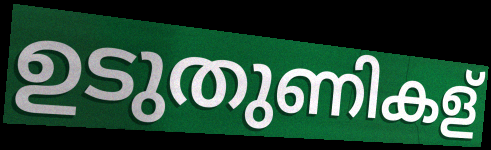
ഉടുതുണികള്